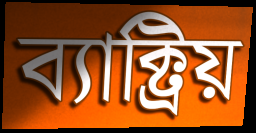
ব্যাক্ট্রিয়